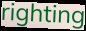
righting